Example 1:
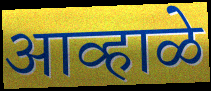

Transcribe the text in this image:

आव्हाळे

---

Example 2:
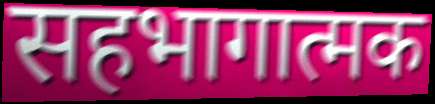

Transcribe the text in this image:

सहभागात्मक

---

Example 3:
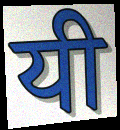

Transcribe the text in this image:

यी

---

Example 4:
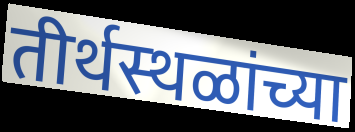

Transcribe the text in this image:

तीर्थस्थळांच्या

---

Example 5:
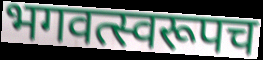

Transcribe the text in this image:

भगवत्स्वरूपच